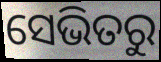
ସେଭିତରୁ